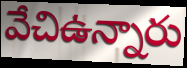
వేచిఉన్నారు